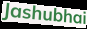
Jashubhai